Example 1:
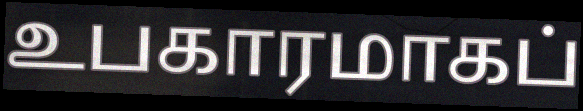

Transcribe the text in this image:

உபகாரமாகப்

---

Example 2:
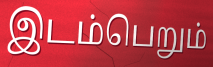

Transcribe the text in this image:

இடம்பெறும்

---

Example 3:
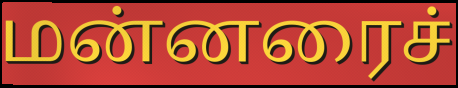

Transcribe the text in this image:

மன்னரைச்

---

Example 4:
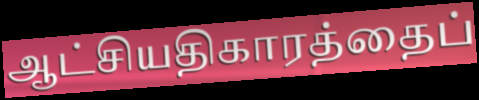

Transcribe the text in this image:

ஆட்சியதிகாரத்தைப்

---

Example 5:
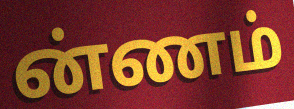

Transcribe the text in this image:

ன்ணம்